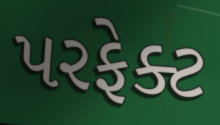
પરફેક્ટ